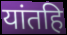
यांतहि